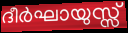
ദീർഘായുസ്സ്